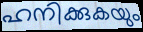
ഹനിക്കുകയും